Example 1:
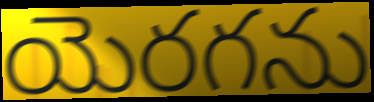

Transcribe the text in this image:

యెరగను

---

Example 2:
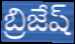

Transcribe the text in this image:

బ్రిజేష్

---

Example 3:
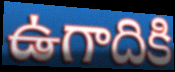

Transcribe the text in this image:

ఉగాదికి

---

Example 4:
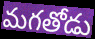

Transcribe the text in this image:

మగతోడు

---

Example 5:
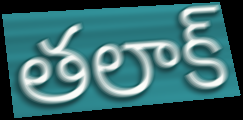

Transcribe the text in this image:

తలాక్